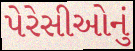
પેરેસીઓનું